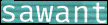
sawant